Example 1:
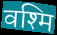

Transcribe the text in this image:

वश्मि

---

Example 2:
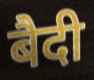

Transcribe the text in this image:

बैदी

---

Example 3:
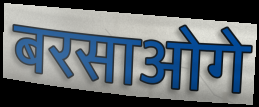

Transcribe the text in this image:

बरसाओगे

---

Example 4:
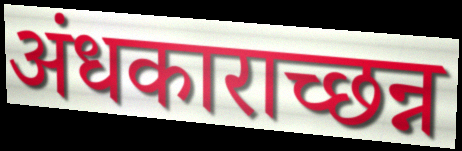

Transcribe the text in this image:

अंधकाराच्छन्न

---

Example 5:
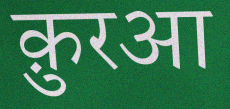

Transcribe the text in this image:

क़ुरआ